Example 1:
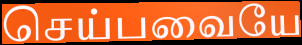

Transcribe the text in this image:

செய்பவையே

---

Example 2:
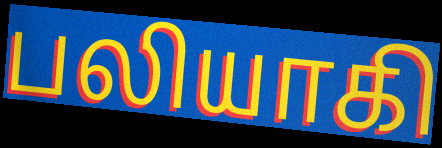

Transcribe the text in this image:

பலியாகி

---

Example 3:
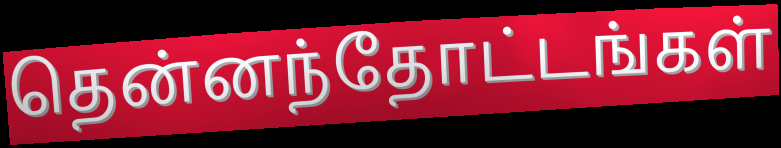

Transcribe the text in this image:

தென்னந்தோட்டங்கள்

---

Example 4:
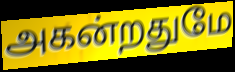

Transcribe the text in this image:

அகன்றதுமே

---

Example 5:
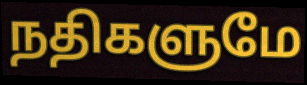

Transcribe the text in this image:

நதிகளுமே